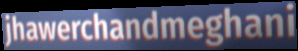
jhawerchandmeghani